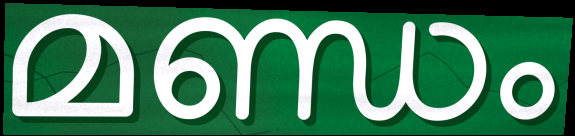
മണ്ഡം